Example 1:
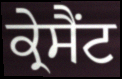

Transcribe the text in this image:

ਕ੍ਰੇਸੈਂਟ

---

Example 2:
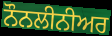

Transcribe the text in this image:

ਨੌਨਲੀਨੀਅਰ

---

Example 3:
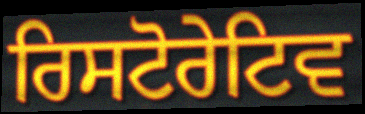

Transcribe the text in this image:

ਰਿਸਟੋਰੇਟਿਵ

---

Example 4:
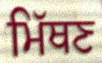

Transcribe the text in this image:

ਮਿੱਥਣ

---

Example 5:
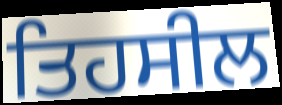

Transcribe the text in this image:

ਤਿਹਸੀਲ